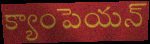
క్యాంపెయన్